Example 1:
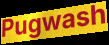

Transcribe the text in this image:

Pugwash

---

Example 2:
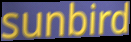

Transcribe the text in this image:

sunbird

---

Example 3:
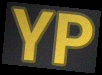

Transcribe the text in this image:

YP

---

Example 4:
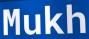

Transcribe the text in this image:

Mukh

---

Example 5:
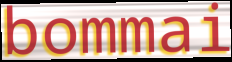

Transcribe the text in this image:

bommai